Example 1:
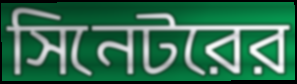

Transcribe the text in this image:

সিনেটরের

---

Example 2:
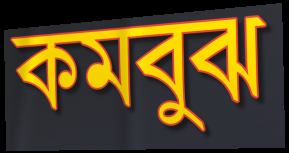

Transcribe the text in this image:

কমবুঝ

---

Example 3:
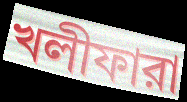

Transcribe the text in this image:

খলীফারা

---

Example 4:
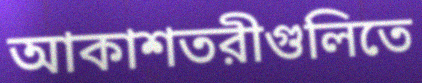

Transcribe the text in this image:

আকাশতরীগুলিতে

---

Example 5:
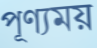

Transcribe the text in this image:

পূণ্যময়